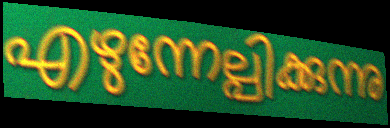
എഴുന്നേല്പിക്കുന്നു